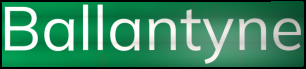
Ballantyne